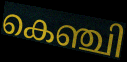
കെഞ്ചി